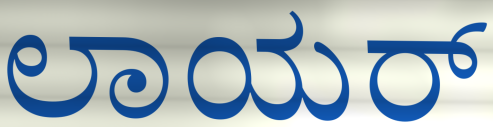
ಲಾಯರ್